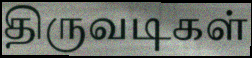
திருவடிகள்